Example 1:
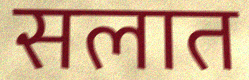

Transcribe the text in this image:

सलात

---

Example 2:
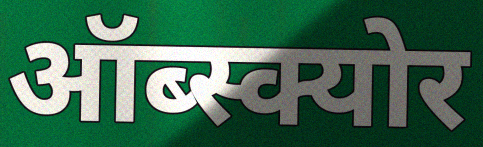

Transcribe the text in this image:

ऑब्स्क्योर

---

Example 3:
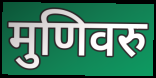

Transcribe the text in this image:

मुणिवरु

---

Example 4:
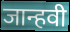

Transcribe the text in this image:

जान्हवी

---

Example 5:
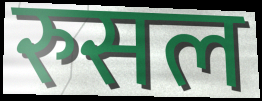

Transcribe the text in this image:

रुसल